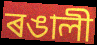
ৰঙালী